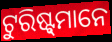
ଟୁରିଷ୍ଟ୍‍ମାନେ